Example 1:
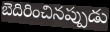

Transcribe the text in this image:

బెదిరించినప్పుడు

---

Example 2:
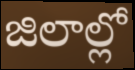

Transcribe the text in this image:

జిలాల్లో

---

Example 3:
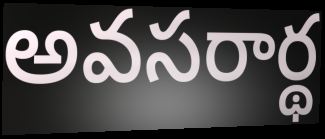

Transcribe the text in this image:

అవసరార్థ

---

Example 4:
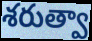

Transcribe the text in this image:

శరుత్వా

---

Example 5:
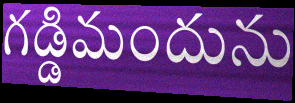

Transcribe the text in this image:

గడ్డిమందును